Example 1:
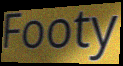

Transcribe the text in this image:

Footy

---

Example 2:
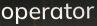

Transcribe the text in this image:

operator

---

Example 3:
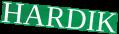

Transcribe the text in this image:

HARDIK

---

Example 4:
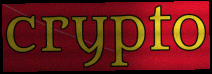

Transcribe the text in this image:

crypto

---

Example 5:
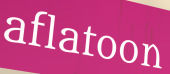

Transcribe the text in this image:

aflatoon